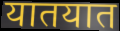
यातयात